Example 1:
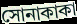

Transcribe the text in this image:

সোনাকাকা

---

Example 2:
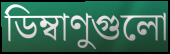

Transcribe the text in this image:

ডিম্বাণুগুলো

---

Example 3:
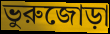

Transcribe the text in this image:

ভুরুজোড়া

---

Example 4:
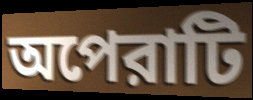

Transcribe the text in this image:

অপেরাটি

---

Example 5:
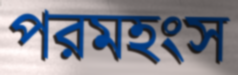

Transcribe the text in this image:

পরমহংস